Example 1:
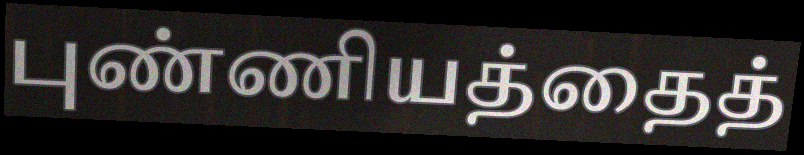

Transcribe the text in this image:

புண்ணியத்தைத்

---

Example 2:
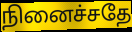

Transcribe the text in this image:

நினைச்சதே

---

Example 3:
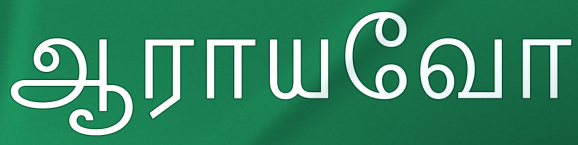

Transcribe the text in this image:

ஆராயவோ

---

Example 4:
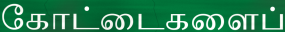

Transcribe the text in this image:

கோட்டைகளைப்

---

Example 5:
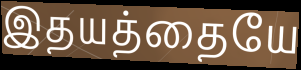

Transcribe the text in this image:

இதயத்தையே